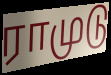
ராமுடு